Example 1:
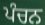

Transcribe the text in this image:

ਪੰਚਨ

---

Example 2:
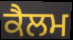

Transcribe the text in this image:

ਕੈਲਮ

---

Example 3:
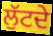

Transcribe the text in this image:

ਲੁੱਟਦੇ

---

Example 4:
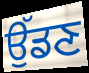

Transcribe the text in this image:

ਉੱਡਣ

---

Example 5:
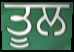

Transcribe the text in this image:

ਤੂਲ